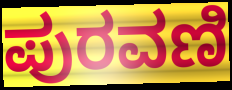
ಪುರವಣಿ